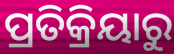
ପ୍ରତିକ୍ରିୟାରୁ